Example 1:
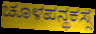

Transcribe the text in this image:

ಚೂಳಪನ್ಥಕಸ್ಸ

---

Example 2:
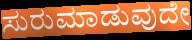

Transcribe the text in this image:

ಸುರುಮಾಡುವುದೇ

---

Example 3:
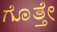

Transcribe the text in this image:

ಗೊತ್ತೇ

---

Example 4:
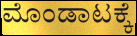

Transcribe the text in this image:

ಮೊಂಡಾಟಕ್ಕೆ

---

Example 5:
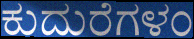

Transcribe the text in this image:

ಕುದುರೆಗಳಂ